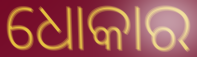
ଧୋକାର